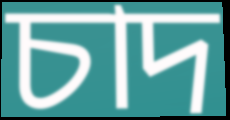
চাদ